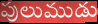
పులుముడు